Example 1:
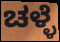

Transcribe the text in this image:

ಚಳ್ಳೆ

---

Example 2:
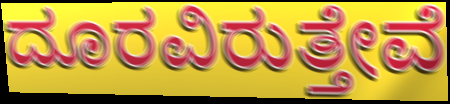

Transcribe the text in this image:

ದೂರವಿರುತ್ತೇವೆ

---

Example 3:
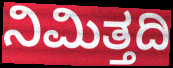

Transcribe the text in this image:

ನಿಮಿತ್ತದಿ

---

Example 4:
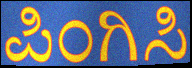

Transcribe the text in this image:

ಪಿಂಗಿಸಿ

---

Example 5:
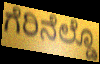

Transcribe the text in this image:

ಗೆರಿನೆಲ್ಡೊ